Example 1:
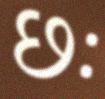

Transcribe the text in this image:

છઃ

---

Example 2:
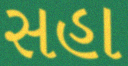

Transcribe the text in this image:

સહા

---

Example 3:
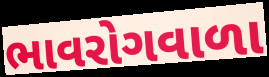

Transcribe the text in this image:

ભાવરોગવાળા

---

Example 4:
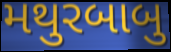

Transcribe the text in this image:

મથુરબાબુ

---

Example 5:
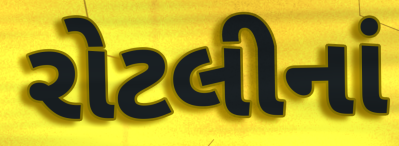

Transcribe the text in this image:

રોટલીનાં